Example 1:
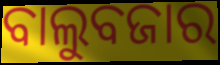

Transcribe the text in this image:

ବାଲୁବଜାର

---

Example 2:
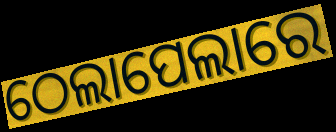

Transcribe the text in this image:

ଠେଲାପେଲାରେ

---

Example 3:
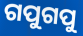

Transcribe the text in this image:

ଗପୁଗପୁ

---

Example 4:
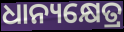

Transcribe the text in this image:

ଧାନ୍ୟକ୍ଷେତ୍ର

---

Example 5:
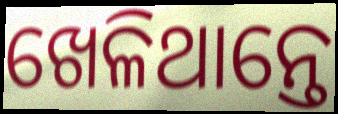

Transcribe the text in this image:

ଖେଳିଥାନ୍ତେ